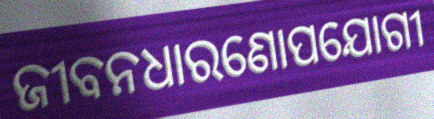
ଜୀବନଧାରଣୋପଯୋଗୀ